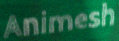
Animesh